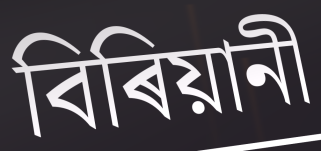
বিৰিয়ানী